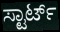
ಸ್ಟಾರ್ಟ್